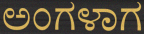
ಅಂಗಳಾಗ